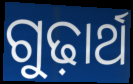
ଗୁଢ଼ାର୍ଥ